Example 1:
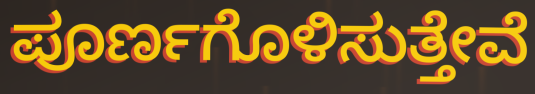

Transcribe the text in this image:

ಪೂರ್ಣಗೊಳಿಸುತ್ತೇವೆ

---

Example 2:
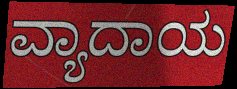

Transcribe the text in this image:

ವ್ಯಾದಾಯ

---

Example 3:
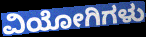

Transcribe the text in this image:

ವಿಯೋಗಿಗಳು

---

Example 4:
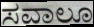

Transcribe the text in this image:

ಸವಾಲೂ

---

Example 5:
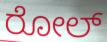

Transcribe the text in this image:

ರೋಲ್